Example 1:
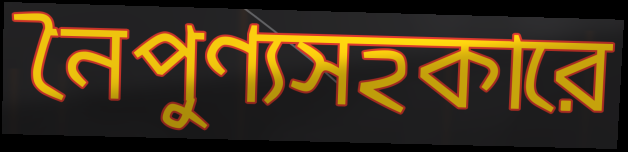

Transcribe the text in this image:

নৈপুণ্যসহকারে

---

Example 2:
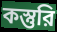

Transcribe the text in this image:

কস্তুরি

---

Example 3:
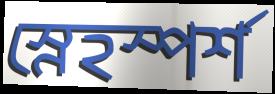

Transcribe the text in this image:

স্নেহস্পর্শ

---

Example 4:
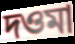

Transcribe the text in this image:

দওমা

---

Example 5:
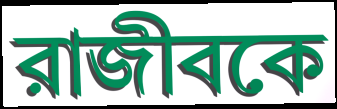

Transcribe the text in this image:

রাজীবকে